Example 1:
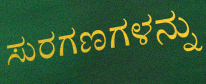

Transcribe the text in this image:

ಸುರಗಣಗಳನ್ನು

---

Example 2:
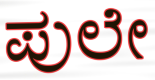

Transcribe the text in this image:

ಪುಲೇ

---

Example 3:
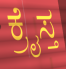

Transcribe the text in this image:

ಕ್ರೈಸ್ತ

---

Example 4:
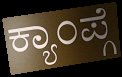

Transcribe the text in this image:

ಕ್ಯಾಂಪ್ಗೆ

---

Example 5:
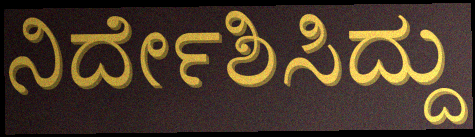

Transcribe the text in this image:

ನಿರ್ದೇಶಿಸಿದ್ದು